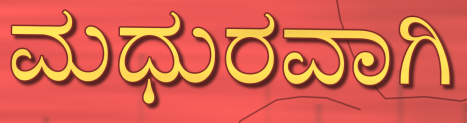
ಮಧುರವಾಗಿ